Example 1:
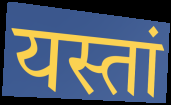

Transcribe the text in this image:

यस्तां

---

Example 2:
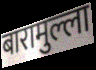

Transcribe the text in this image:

बारामुल्ला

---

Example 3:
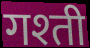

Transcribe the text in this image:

गश्‍ती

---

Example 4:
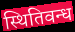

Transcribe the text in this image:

स्थितिवन्ध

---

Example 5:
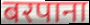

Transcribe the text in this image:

बरपाना